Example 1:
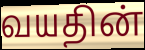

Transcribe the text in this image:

வயதின்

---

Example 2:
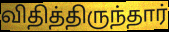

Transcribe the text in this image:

விதித்திருந்தார்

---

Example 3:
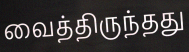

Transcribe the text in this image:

வைத்திருந்தது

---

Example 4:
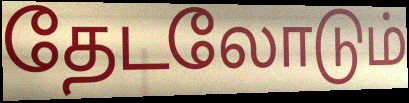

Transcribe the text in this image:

தேடலோடும்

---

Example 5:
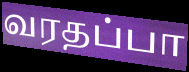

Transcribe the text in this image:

வரதப்பா